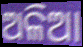
ଅଳିଆ